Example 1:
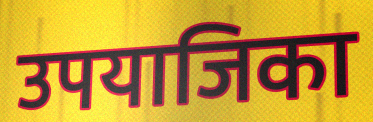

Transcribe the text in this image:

उपयाजिका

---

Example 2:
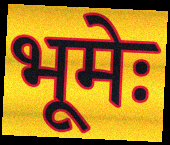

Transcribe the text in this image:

भूमेः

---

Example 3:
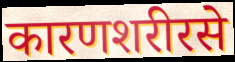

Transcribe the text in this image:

कारणशरीरसे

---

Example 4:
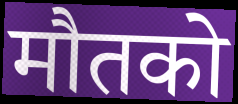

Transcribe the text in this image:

मौतको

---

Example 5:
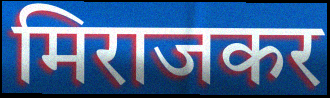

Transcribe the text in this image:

मिराजकर